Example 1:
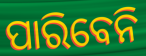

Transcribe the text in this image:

ପାରିବେନି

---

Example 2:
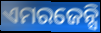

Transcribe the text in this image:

ଏମରଜେନ୍ସି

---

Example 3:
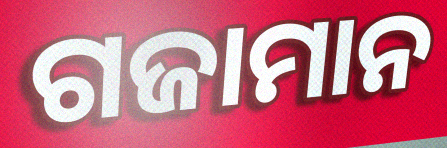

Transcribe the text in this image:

ଗଜାମାନ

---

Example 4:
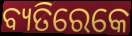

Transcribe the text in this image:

ବ୍ୟତିରେକେ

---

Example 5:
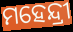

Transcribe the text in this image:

ମହେନ୍ଦ୍ରୀ